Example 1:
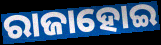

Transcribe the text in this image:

ରାଜାହୋଇ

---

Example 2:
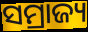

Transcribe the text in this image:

ସମ୍ରାଜ୍ୟ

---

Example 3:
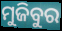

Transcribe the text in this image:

ମୁଜିବୁର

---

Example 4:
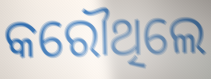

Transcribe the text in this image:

କରୌଥିଲେ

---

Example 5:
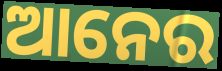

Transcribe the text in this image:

ଆନେର